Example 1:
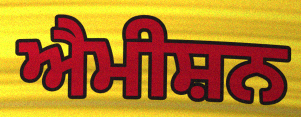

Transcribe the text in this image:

ਐਮੀਸ਼ਨ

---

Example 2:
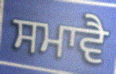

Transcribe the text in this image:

ਸਮਾਵੈ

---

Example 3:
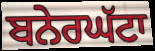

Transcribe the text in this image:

ਬਨੇਰਘੱਟਾ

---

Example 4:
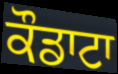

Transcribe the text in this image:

ਕੌਡਾਟਾ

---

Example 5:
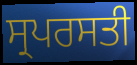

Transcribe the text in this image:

ਸ੍ਰਪਰਸਤੀ